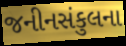
જનીનસંકુલના